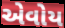
એવોય